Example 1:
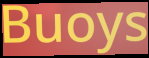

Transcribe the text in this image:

Buoys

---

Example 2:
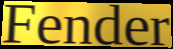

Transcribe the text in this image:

Fender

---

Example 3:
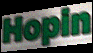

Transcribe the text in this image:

Hopin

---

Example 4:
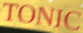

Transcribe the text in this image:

TONIC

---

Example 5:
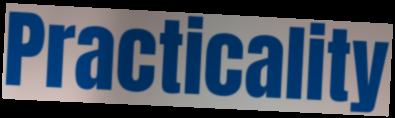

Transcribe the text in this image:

Practicality